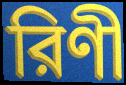
রিণী